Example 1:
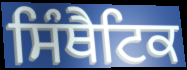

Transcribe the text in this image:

ਸਿੰਥੈਟਿਕ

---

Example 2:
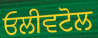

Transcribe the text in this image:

ਓਲੀਵਟੋਲ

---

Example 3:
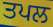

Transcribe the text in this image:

ਤਪਲ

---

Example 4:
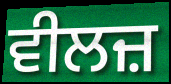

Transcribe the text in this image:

ਵੀਲਜ਼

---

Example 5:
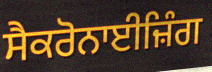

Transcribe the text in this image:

ਸੈਕਰੋਨਾਈਜ਼ਿੰਗ